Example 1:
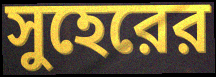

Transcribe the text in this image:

সুহেরের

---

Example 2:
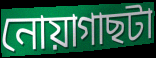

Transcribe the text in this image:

নোয়াগাছটা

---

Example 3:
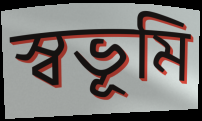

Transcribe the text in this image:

স্বভূমি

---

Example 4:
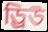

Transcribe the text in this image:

ড্রিউ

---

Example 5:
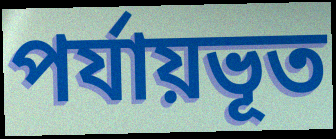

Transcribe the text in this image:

পর্যায়ভূত